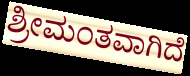
ಶ್ರೀಮಂತವಾಗಿದೆ